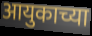
आयुकाच्या